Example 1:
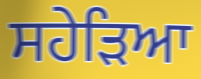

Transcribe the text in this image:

ਸਹੇੜਿਆ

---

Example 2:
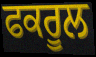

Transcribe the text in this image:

ਫਕਰੂਲ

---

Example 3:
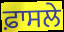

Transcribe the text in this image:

ਫ਼ਾਸਲੇ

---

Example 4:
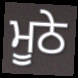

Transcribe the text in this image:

ਮੂਠੇ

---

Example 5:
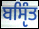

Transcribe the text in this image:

ਬਸੵਿੰਤ